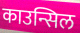
काउन्सिल